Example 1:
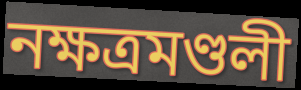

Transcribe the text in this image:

নক্ষত্রমণ্ডলী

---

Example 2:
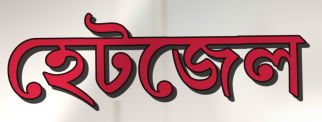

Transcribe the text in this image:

হেটজেল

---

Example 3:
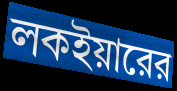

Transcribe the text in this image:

লকইয়ারের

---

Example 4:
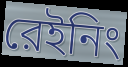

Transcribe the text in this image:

রেইনিং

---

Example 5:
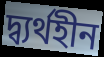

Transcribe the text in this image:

দ্ব্যর্থহীন